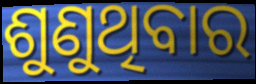
ଶୁଣୁଥିବାର